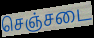
செஞ்சடை